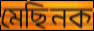
মেছিনক